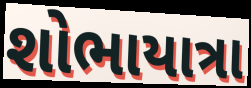
શોભાયાત્રા